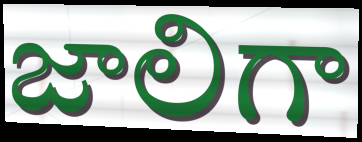
జాలిగా